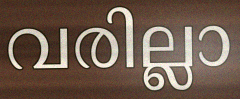
വരില്ലാ